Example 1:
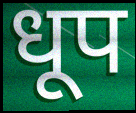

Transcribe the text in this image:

धूप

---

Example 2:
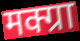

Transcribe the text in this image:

मक्ग्रा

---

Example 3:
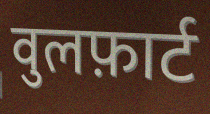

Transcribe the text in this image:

वुलफ़ार्ट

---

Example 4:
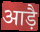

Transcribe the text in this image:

आड़ै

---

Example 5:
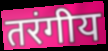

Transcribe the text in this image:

तरंगीय